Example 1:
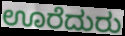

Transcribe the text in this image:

ಊರೆದುರು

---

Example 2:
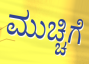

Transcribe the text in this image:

ಮುಚ್ಚಿಗೆ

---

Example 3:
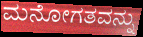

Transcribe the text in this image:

ಮನೋಗತವನ್ನು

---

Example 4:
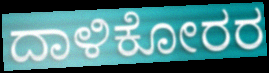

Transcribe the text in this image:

ದಾಳಿಕೋರರ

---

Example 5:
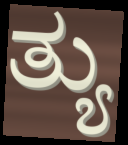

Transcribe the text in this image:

ತ್ಯು